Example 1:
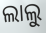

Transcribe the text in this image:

ଲାଲୁ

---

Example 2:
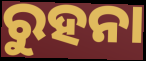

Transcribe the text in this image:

ରୁହନା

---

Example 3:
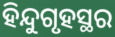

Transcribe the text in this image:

ହିନ୍ଦୁଗୃହସ୍ଥର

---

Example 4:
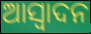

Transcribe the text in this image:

ଆସ୍ୱାଦନ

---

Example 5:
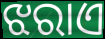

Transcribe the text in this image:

ଝରାଏ